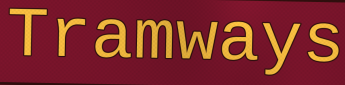
Tramways